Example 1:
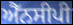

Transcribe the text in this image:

ਐੱਨਸੀਪੀ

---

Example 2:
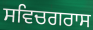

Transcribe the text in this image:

ਸਵਿਚਗਰਾਸ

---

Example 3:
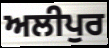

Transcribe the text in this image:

ਅਲੀਪੁਰ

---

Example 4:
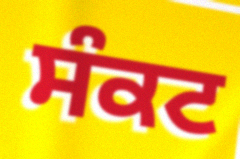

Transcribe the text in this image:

ਸੰਕਟ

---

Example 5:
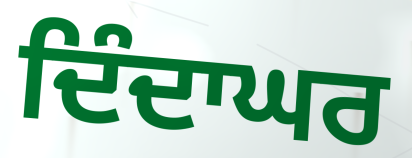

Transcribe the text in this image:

ਦਿੰਦਾਘਰ